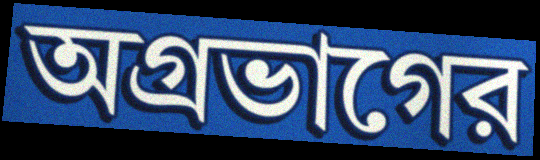
অগ্রভাগের